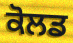
ਕੋਲਡ